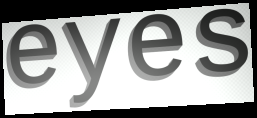
eyes